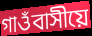
গাওঁবাসীয়ে